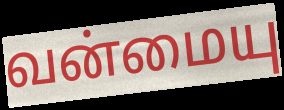
வன்மையு